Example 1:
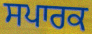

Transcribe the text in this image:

ਸਪਾਰਕ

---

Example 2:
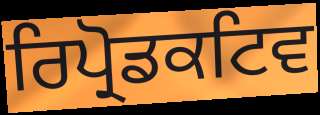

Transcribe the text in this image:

ਰਿਪ੍ਰੋਡਕਟਿਵ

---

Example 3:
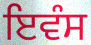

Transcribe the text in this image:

ਇਵੰਸ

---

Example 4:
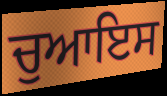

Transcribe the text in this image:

ਚੁਆਇਸ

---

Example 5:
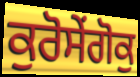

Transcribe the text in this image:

ਕੁਰੋਸੇਂਗੋਕੁ